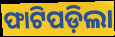
ଫାଟିପଡ଼ିଲା